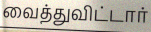
வைத்துவிட்டார்